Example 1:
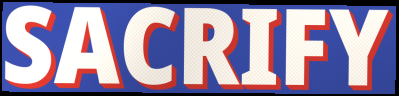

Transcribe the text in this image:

SACRIFY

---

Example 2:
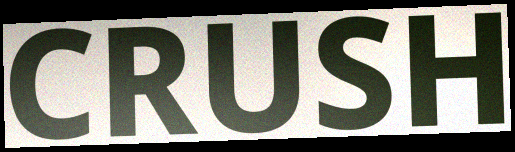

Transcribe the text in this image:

CRUSH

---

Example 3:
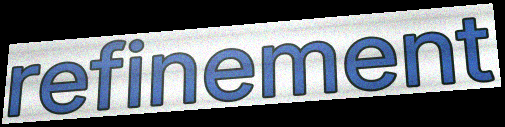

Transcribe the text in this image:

refinement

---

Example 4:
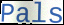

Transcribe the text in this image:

Pals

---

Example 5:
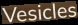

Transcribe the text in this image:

Vesicles